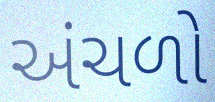
અંચળો